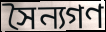
সৈন্যগণ